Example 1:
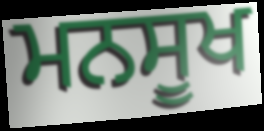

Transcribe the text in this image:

ਮਨਸੂਖ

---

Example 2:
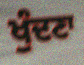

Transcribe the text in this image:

ਖੁੰਦਣਾ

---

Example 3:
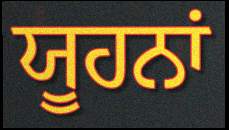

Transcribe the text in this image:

ਯੂਹਨਾਂ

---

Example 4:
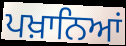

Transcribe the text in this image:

ਪਖ਼ਾਨਿਆਂ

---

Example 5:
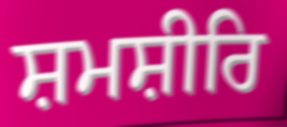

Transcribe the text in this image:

ਸ਼ਮਸ਼ੀਰਿ